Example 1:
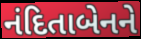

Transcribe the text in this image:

નંદિતાબેનને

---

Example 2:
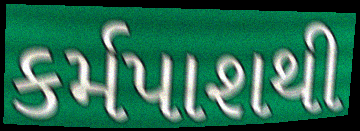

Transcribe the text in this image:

કર્મપાશથી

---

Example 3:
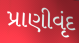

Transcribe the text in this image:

પ્રાણીવૃંદ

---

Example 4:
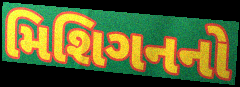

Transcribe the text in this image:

મિશિગનનો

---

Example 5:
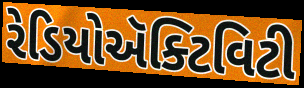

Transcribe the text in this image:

રેડિયોઍક્ટિવિટી